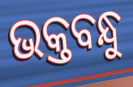
ଭକ୍ତବନ୍ଧୁ